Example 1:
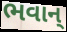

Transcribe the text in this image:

ભવાન્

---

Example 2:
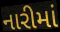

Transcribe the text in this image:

નારીમાં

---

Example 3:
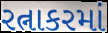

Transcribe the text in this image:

રત્નાકરમાં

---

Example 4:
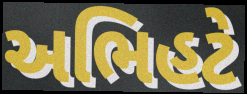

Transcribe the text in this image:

અભિહટે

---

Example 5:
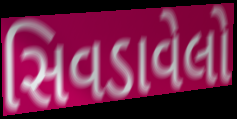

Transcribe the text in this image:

સિવડાવેલો